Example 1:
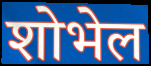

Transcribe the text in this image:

शोभेल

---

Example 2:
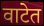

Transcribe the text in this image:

वाटेत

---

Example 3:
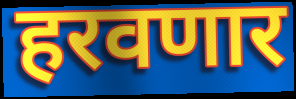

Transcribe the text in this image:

हरवणार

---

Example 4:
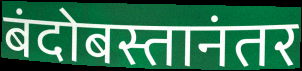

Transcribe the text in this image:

बंदोबस्तानंतर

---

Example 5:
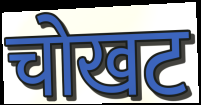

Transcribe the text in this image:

चोखट